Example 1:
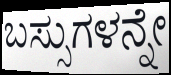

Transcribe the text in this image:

ಬಸ್ಸುಗಳನ್ನೇ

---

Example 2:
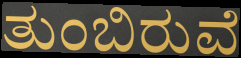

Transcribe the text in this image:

ತುಂಬಿರುವೆ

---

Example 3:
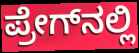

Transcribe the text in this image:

ಪ್ರೇಗ್‌ನಲ್ಲಿ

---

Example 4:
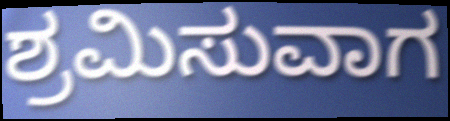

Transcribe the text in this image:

ಶ್ರಮಿಸುವಾಗ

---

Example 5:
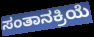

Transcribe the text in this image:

ಸಂತಾನಕ್ರಿಯೆ